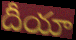
దీయా